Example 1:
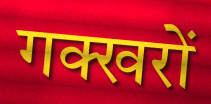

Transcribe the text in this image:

गक्खरों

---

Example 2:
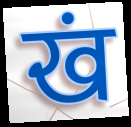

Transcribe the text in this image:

खं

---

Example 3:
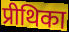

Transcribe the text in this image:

प्रीथिका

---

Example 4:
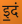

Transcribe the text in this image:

इ॒दं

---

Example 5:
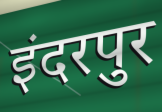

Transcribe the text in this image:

इंदरपुर